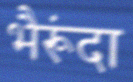
भैरूंदा